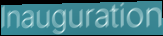
Inauguration